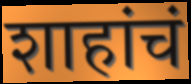
शाहांचं